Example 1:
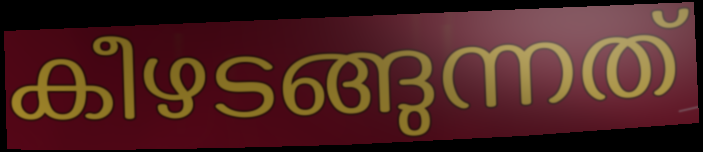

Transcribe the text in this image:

കീഴടങ്ങുന്നത്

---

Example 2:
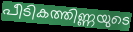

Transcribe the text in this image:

പീടികത്തിണ്ണയുടെ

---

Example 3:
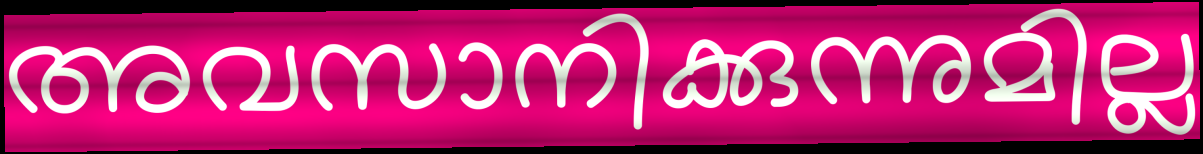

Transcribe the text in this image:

അവസാനിക്കുന്നുമില്ല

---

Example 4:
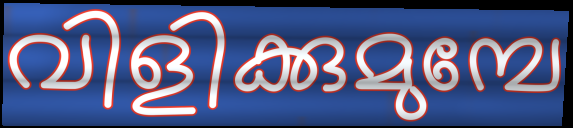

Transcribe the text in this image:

വിളിക്കുമുമ്പേ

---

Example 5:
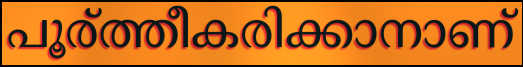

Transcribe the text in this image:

പൂര്ത്തീകരിക്കാനാണ്